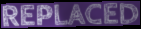
REPLACED